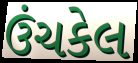
ઉંચકેલ